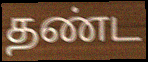
தண்ட